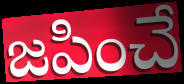
జపించే